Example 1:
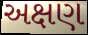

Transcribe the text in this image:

અક્ષણ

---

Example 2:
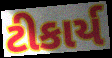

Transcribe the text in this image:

ટીકાર્ય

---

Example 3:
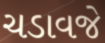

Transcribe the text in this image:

ચડાવજે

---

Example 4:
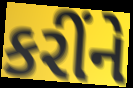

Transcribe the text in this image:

કરીંને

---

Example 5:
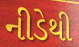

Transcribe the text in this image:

નીડેથી